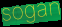
sogan